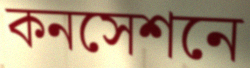
কনসেশনে